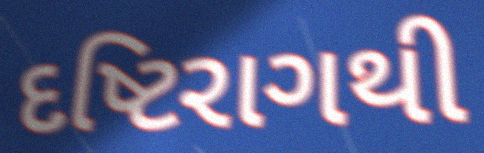
દષ્ટિરાગથી